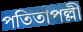
পতিতাপল্লী